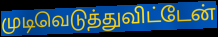
முடிவெடுத்துவிட்டேன்